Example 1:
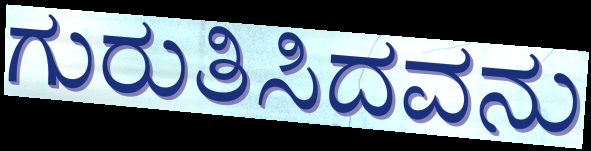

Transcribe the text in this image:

ಗುರುತಿಸಿದವನು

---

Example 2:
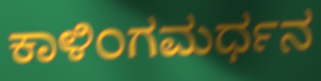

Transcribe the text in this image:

ಕಾಳಿಂಗಮರ್ಧನ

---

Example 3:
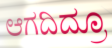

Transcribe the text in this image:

ಆಗದಿದ್ರೂ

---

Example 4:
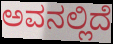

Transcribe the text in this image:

ಅವನಲ್ಲಿದೆ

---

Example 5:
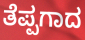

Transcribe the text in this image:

ತೆಪ್ಪಗಾದ